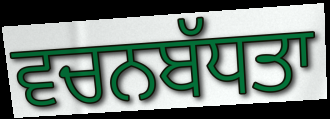
ਵਚਨਬੱਧਤਾ